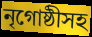
নৃগোষ্ঠীসহ